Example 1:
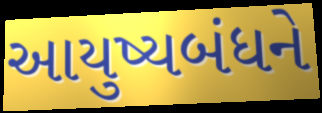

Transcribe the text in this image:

આયુષ્યબંધને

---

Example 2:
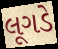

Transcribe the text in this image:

લૂગડે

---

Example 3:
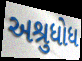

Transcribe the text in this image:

અશ્રુધોધ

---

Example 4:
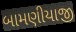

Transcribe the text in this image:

બામણીયાજી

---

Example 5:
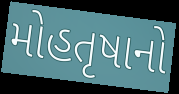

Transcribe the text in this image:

મોહતૃષાનો